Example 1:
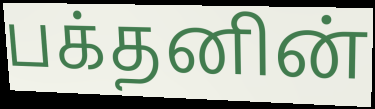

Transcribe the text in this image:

பக்தனின்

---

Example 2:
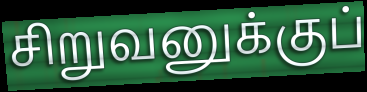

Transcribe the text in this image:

சிறுவனுக்குப்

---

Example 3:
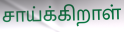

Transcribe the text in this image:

சாய்க்கிறாள்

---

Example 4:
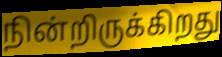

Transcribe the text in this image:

நின்றிருக்கிறது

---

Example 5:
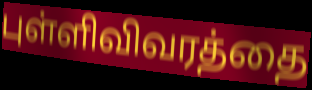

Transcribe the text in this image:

புள்ளிவிவரத்தை